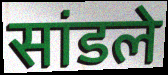
सांडले